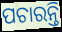
ପଚାରନ୍ତି